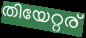
തിയേറ്റര്